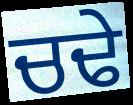
ਚਢੇ